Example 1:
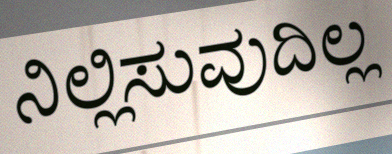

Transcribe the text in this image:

ನಿಲ್ಲಿಸುವುದಿಲ್ಲ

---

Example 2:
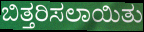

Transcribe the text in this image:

ಬಿತ್ತರಿಸಲಾಯಿತು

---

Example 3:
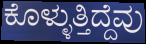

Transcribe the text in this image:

ಕೊಳ್ಳುತ್ತಿದ್ದೆವು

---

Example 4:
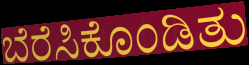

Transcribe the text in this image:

ಬೆರೆಸಿಕೊಂಡಿತು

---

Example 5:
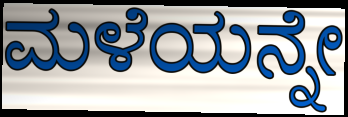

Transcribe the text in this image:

ಮಳೆಯನ್ನೇ